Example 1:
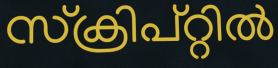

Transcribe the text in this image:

സ്ക്രിപ്റ്റിൽ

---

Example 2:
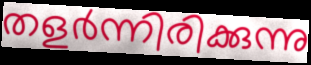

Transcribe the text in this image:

തളർന്നിരിക്കുന്നു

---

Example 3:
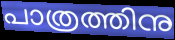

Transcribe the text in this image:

പാത്രത്തിനു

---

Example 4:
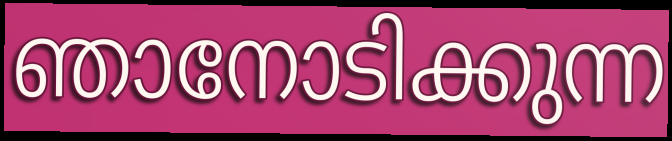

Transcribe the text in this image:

ഞാനോടിക്കുന്ന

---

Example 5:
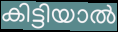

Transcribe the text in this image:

കിട്ടിയാൽ